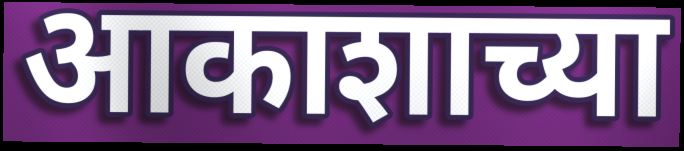
आकाशाच्या